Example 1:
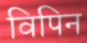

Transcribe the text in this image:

विपिन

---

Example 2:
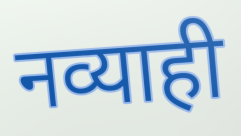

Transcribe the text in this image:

नव्याही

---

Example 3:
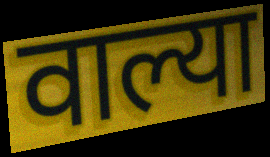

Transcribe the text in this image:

वाल्या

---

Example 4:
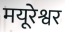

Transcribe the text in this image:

मयूरेश्वर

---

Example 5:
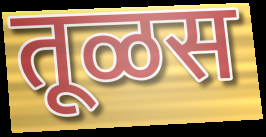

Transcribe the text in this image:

तूळस